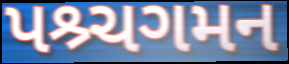
પશ્ર્ચગમન